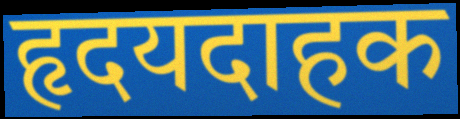
हृदयदाहक